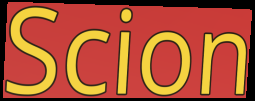
Scion